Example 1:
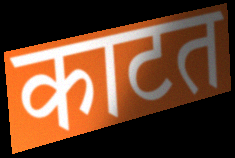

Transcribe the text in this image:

काटत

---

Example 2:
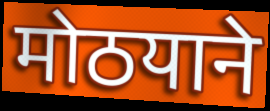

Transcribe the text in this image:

मोठयाने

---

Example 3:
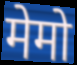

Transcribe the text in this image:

मेमो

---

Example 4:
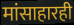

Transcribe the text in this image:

मांसाहारही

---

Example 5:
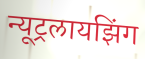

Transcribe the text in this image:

न्यूट्रलायझिंग